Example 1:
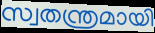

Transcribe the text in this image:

സ്വതന്ത്രമായി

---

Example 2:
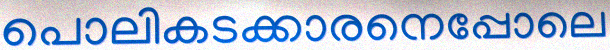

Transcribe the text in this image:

പൊലികടക്കാരനെപ്പോലെ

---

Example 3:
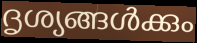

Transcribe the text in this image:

ദൃശ്യങ്ങൾക്കും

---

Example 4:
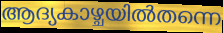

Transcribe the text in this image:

ആദ്യകാഴ്ചയിൽതന്നെ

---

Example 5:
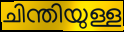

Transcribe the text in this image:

ചിന്തിയുള്ള